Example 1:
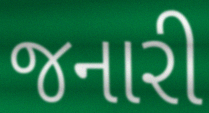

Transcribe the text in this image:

જનારી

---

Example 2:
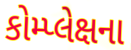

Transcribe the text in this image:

કોમ્પ્લેક્ષના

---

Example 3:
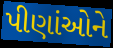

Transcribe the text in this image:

પીણાંઓને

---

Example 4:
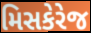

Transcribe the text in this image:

મિસકેરેજ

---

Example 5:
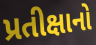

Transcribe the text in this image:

પ્રતીક્ષાનો